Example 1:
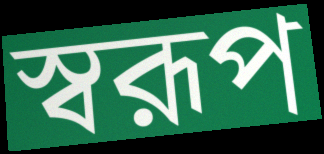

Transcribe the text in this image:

স্বরূপ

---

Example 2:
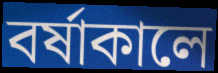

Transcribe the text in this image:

বর্ষাকালে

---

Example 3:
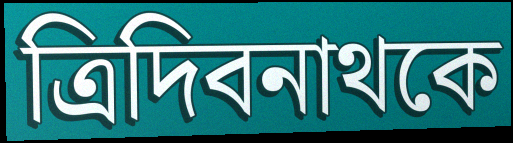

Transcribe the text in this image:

ত্রিদিবনাথকে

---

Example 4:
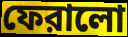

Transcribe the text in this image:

ফেরালো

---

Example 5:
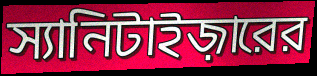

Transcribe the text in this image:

স্যানিটাইজ়ারের